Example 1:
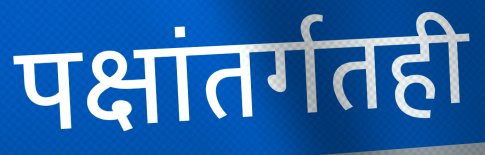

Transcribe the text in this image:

पक्षांतर्गतही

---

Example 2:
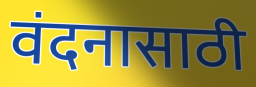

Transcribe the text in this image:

वंदनासाठी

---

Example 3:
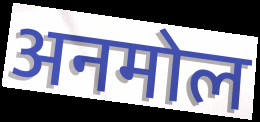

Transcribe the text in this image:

अनमोल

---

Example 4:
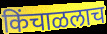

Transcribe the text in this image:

किंचाळलाच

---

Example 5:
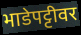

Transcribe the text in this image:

भाडेपट्टीवर